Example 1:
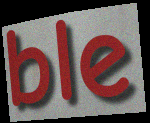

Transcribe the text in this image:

ble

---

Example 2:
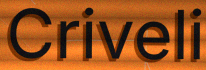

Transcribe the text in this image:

Criveli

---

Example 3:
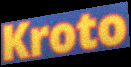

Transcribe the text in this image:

Kroto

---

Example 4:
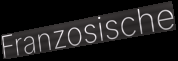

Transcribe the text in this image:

Franzosische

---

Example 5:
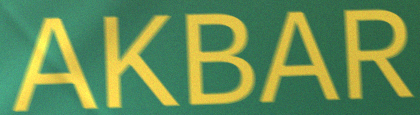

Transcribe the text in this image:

AKBAR